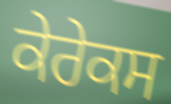
ਕੇਰੇਕਸ